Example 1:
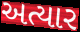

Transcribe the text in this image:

અત્યાર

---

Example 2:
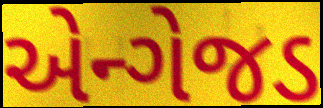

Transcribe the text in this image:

એન્ગેજડ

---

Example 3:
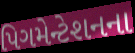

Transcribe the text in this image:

પિગમેન્ટેશનના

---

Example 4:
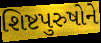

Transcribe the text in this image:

શિષ્ટપુરુષોને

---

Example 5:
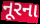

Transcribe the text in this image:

નૂરના